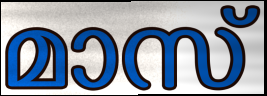
മാസ്